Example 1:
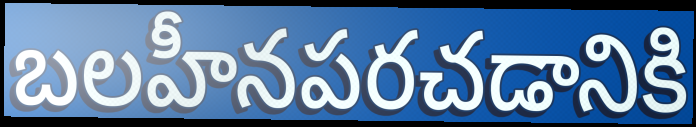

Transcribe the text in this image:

బలహీనపరచడానికి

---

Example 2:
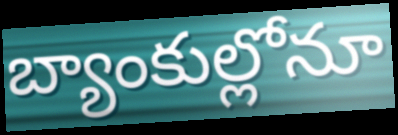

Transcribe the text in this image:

బ్యాంకుల్లోనూ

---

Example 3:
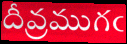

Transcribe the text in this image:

దీవ్రముగఁ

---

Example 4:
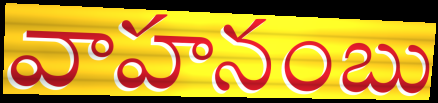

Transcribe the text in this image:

వాహనంబు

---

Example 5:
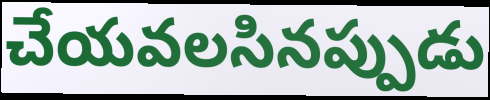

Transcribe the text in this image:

చేయవలసినప్పుడు